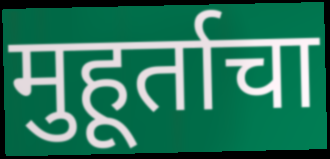
मुहूर्ताचा